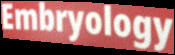
Embryology